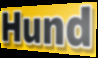
Hund